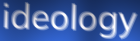
ideology